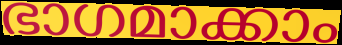
ഭാഗമാക്കാം